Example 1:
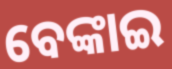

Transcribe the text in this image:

ବେଙ୍କାଇ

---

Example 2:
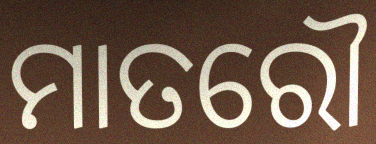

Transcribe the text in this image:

ମାତରୌ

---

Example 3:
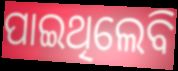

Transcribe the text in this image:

ପାଇଥିଲେବି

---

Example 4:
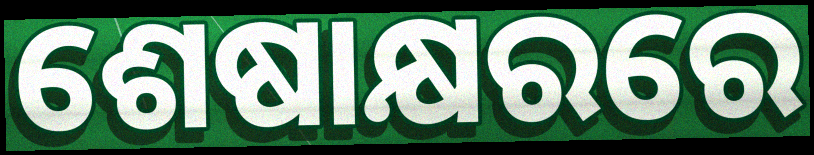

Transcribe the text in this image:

ଶେଷାକ୍ଷରରେ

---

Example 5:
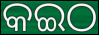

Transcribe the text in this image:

କଇଠ